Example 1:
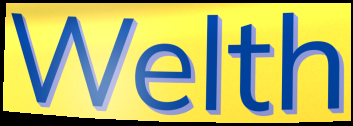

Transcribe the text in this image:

Welth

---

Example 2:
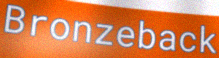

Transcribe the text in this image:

Bronzeback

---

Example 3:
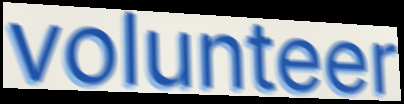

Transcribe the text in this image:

volunteer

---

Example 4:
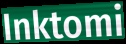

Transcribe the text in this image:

Inktomi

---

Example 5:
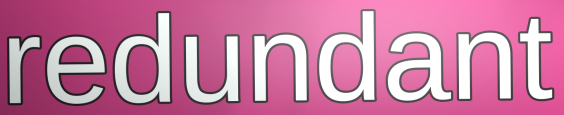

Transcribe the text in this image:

redundant